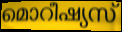
മൊറീഷ്യസ്